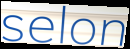
selon